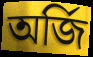
অর্জি